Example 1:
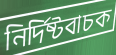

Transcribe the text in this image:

নিৰ্দিষ্টবাচক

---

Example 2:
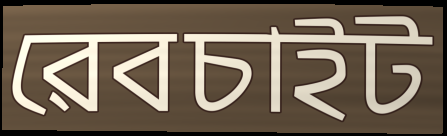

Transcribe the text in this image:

ৱেবচাইট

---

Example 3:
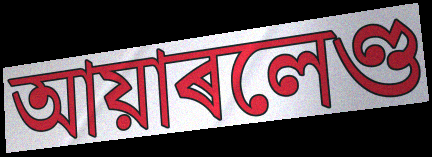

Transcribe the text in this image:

আয়াৰলেণ্ড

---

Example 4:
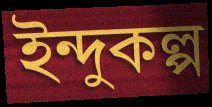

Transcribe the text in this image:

ইন্দুকল্প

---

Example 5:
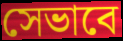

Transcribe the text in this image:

সেভাবে